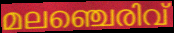
മലഞ്ചെരിവ്